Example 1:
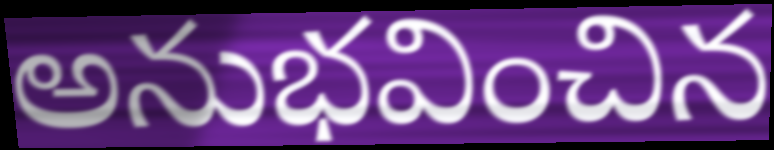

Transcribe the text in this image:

అనుభవించిన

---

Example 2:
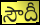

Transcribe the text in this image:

సౌదీ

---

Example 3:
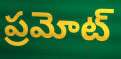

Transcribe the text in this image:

ప్రమోట్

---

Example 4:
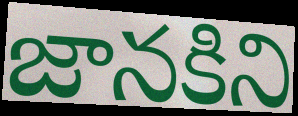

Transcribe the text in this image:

జానకిని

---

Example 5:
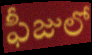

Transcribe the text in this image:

ఫీజులో